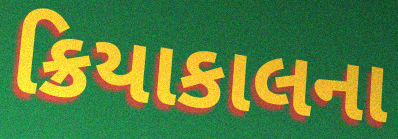
ક્રિયાકાલના